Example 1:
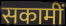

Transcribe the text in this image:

सकामीं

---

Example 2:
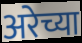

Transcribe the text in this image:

अरेच्या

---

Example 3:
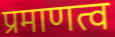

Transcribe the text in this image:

प्रमाणत्व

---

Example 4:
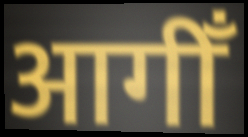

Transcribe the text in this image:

आगीँ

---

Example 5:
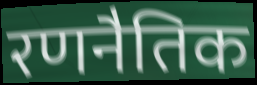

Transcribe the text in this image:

रणनैतिक